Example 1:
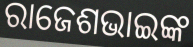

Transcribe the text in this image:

ରାଜେଶଭାଇଙ୍କ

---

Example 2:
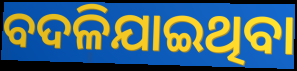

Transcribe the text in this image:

ବଦଳିଯାଇଥିବା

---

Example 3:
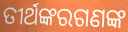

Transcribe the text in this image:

ତୀର୍ଥଙ୍କରଗଣଙ୍କ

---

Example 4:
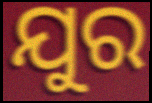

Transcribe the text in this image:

ଯୁର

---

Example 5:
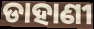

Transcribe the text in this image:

ଡାହାଣୀ